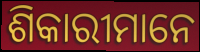
ଶିକାରୀମାନେ